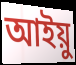
আইয়ু